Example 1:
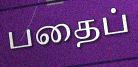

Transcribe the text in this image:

பதைப்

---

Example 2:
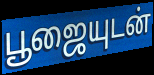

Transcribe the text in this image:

பூஜையுடன்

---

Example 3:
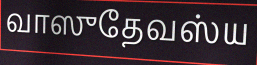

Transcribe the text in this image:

வாஸுதேவஸ்ய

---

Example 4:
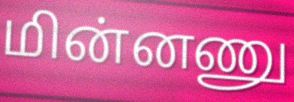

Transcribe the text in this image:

மின்னணு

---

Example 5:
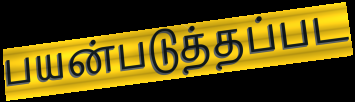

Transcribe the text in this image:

பயன்படுத்தப்பட